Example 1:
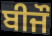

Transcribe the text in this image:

ਬੀਜੌ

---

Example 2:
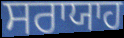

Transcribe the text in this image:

ਸਰਾਯਾਹ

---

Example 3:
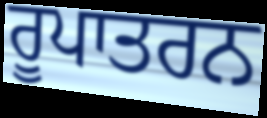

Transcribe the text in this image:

ਰੂਪਾਤਰਨ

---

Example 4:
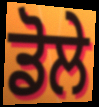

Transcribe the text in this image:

ਡੋਲੇ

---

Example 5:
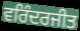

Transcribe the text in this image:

ਵਰਿੰਦਰਜੀਤ